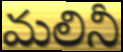
మలినీ